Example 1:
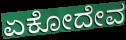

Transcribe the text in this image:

ಏಕೋದೇವ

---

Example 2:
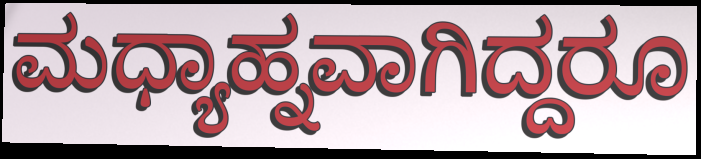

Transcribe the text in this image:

ಮಧ್ಯಾಹ್ನವಾಗಿದ್ದರೂ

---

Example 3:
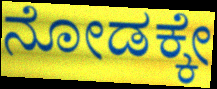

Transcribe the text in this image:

ನೋಡಕ್ಕೇ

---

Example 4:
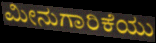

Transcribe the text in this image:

ಮೀನುಗಾರಿಕೆಯು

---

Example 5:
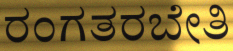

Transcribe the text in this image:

ರಂಗತರಬೇತಿ